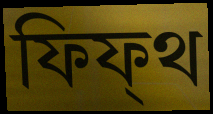
ফিফ্থ